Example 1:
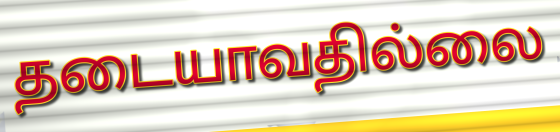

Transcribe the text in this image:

தடையாவதில்லை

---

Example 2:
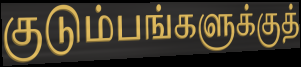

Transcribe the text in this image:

குடும்பங்களுக்குத்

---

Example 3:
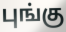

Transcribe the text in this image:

புங்கு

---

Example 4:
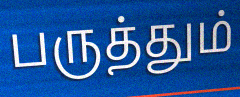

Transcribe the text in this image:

பருத்தும்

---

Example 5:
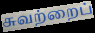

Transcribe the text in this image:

சுவற்றைப்